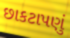
છાકટાપણું